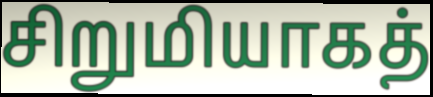
சிறுமியாகத்